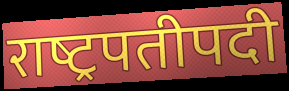
राष्ट्रपतीपदी